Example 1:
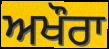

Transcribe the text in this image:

ਅਖੌਰਾ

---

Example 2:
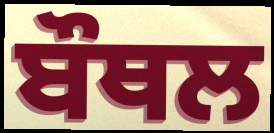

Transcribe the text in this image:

ਬੌਥਲ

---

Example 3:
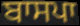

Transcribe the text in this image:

ਬਾਸਪਾ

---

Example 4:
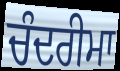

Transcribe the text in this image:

ਚੰਦਰੀਮਾ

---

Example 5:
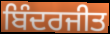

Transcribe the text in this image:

ਬਿੰਦਰਜੀਤ